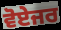
ਵੋਏਜਰ